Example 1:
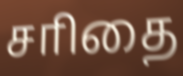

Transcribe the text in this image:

சரிதை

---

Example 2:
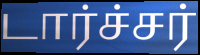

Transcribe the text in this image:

டார்ச்சர்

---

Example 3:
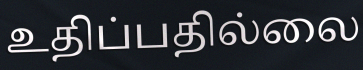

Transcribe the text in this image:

உதிப்பதில்லை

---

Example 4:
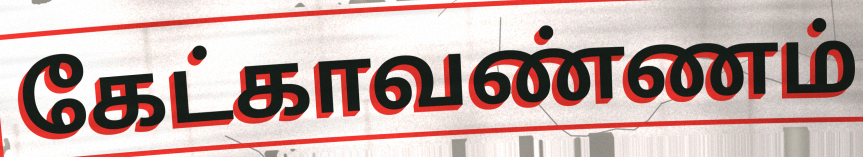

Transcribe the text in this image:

கேட்காவண்ணம்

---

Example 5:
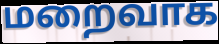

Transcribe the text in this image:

மறைவாக